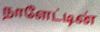
நாளேட்டின்